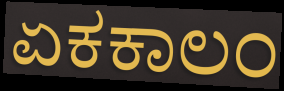
ಏಕಕಾಲಂ